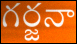
గర్జనా